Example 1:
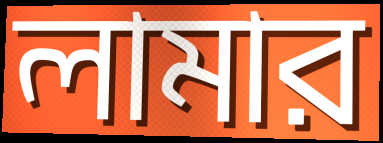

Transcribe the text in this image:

লামার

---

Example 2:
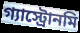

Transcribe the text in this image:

গ্যাস্ট্রোনমি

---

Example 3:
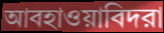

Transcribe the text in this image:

আবহাওয়াবিদরা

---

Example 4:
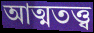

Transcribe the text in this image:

আত্মতত্ত্ব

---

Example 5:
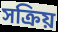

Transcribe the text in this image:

সক্রিয়